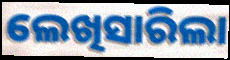
ଲେଖିସାରିଲା